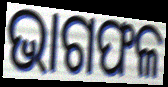
ଭାଗଫଳ